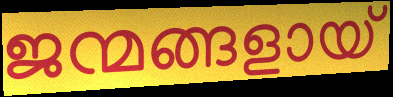
ജന്മങ്ങളായ്